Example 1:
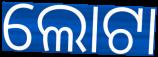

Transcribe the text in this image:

ଲୋଟା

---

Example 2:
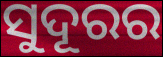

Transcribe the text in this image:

ସୁଦୂରର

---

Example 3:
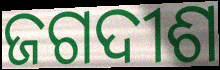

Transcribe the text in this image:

ଜଗଦୀଶ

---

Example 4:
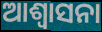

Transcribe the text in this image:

ଆଶ୍ଵାସନା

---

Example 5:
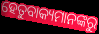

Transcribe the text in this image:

ହେତୁବାକ୍ୟମାନଙ୍କରୁ